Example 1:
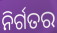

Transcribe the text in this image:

ନିର୍ଗତର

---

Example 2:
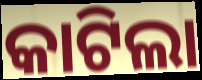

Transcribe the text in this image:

କାଟିଲା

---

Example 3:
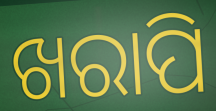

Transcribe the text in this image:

ଖରାପି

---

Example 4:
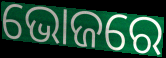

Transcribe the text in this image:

ଭୋଜରେ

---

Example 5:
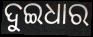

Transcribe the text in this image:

ଦୁଇଧାର